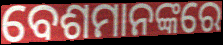
ବେଶମାନଙ୍କରେ